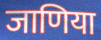
जाणिया